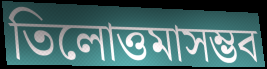
তিলোত্তমাসম্ভব